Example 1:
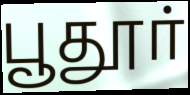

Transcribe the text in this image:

பூதூர்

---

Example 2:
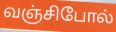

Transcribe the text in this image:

வஞ்சிபோல்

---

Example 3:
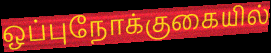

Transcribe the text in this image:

ஒப்புநோக்குகையில்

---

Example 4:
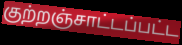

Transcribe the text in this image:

குற்றஞ்சாட்டப்பட்ட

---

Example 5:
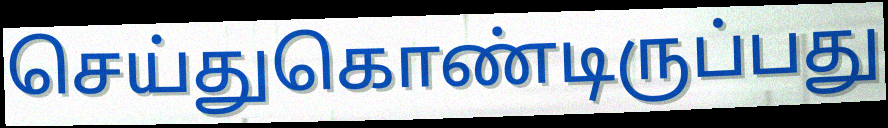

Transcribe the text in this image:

செய்துகொண்டிருப்பது